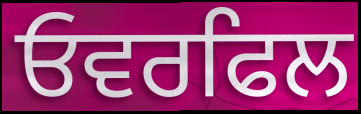
ਓਵਰਫਿਲ